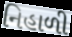
નિહાળી